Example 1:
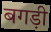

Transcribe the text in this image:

बगड़ी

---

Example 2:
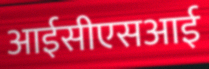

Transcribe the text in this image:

आईसीएसआई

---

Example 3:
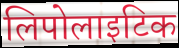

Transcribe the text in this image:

लिपोलाइटिक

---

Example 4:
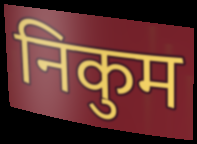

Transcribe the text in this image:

निकुम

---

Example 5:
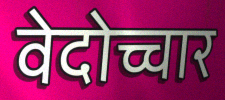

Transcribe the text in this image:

वेदोच्चार